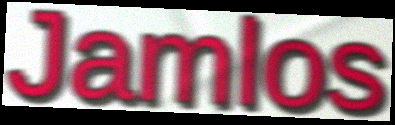
Jamlos